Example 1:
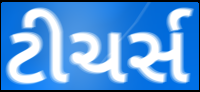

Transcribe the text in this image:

ટીચર્સ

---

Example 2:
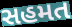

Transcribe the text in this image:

સહમત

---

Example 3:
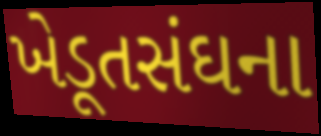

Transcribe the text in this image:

ખેડૂતસંઘના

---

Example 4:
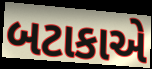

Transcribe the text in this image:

બટાકાએ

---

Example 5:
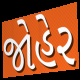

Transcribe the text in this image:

જોહેર